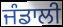
ਜੰਡਾਲੀ